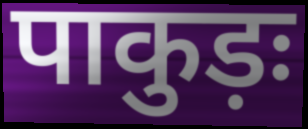
पाकुड़ः